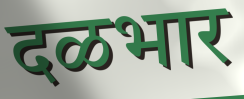
दळभार